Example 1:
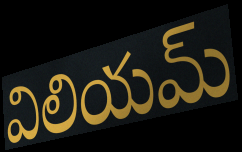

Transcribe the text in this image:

విలియమ్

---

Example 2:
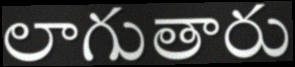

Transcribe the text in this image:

లాగుతారు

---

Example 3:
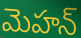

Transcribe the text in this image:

మెహన్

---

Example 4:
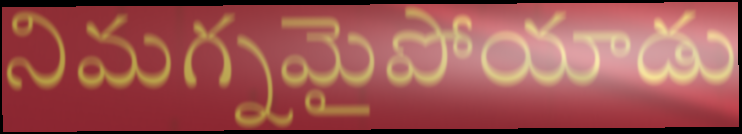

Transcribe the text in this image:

నిమగ్నమైపోయాడు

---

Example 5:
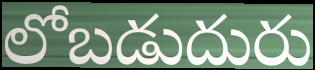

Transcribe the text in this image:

లోబడుదురు